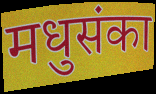
मधुसंका